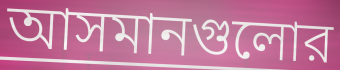
আসমানগুলোর